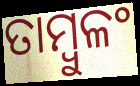
ତାମ୍ବୁଳଂ